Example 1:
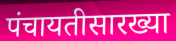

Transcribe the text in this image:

पंचायतीसारख्या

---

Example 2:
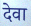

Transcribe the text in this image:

देवा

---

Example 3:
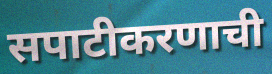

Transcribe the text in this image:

सपाटीकरणाची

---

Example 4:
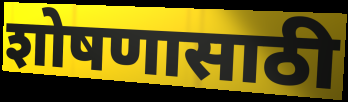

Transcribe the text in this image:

शोषणासाठी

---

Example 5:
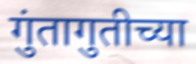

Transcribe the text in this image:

गुंतागुतीच्या